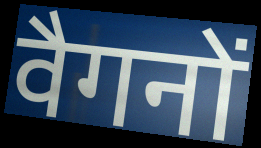
वैगनों